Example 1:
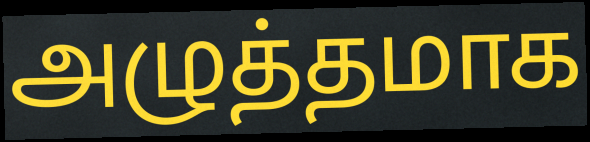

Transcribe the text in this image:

அழுத்தமாக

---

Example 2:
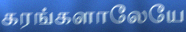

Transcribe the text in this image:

கரங்களாலேயே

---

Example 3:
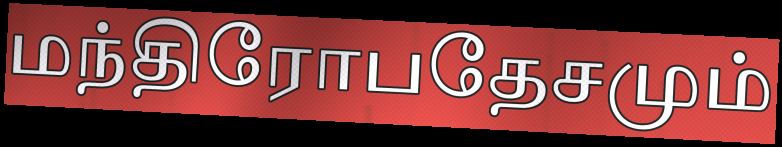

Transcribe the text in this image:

மந்திரோபதேசமும்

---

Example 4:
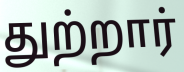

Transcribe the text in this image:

துற்றார்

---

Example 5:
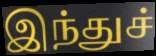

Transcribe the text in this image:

இந்துச்